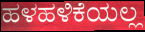
ಹಳಹಳಿಕೆಯಲ್ಲ